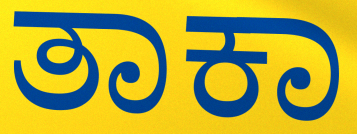
ತಾಕಾ